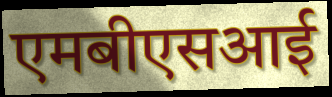
एमबीएसआई